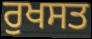
ਰੁਖਸਤ